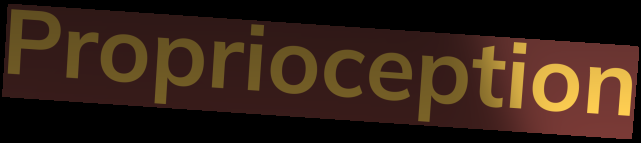
Proprioception